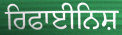
ਰਿਫਾਈਨਿਸ਼